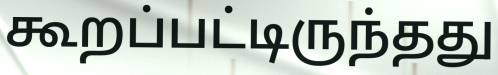
கூறப்பட்டிருந்தது